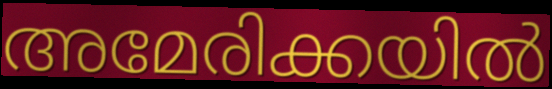
അമേരിക്കയിൽ